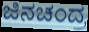
ಜಿನಚಂದ್ರ